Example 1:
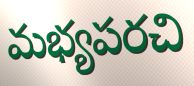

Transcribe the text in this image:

మభ్యపరచి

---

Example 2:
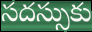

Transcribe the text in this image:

సదస్సుకు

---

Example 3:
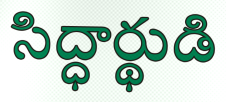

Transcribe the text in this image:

సిద్ధార్థుడి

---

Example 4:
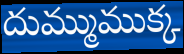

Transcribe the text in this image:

దుమ్ముముక్క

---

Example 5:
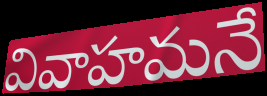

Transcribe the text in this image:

వివాహమనే